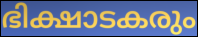
ഭിക്ഷാടകരും